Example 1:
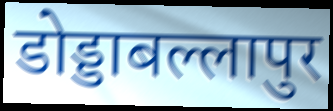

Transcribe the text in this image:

डोड्डाबल्लापुर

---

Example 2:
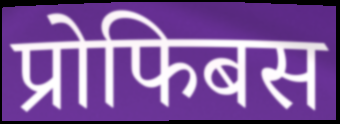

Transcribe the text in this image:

प्रोफिबस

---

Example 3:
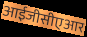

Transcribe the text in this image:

आईजीसीएआर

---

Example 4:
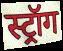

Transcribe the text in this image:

स्ट्रॉग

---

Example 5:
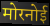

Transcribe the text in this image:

मोरनोई